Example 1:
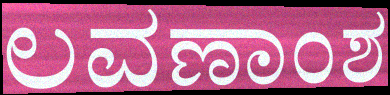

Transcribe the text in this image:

ಲವಣಾಂಶ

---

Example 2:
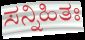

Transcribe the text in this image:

ಸನ್ನಿಹಿತಃ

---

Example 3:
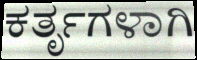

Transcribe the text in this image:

ಕರ್ತೃಗಳಾಗಿ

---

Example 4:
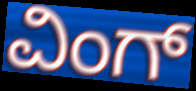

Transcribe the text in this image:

ವಿಂಗ್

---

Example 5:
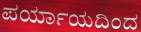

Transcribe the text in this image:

ಪರ್ಯಾಯದಿಂದ